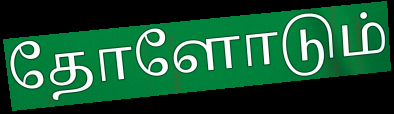
தோளோடும்